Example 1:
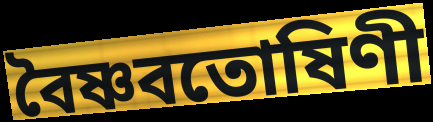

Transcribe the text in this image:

বৈষ্ণবতোষিণী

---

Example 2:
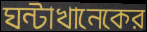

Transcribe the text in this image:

ঘন্টাখানেকের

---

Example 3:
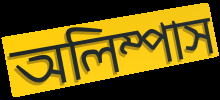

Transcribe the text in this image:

অলিম্পাস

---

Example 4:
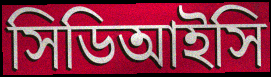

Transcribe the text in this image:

সিডিআইসি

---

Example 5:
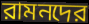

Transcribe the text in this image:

রামনদের